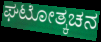
ಘಟೋತ್ಕಚನ